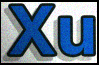
Xu